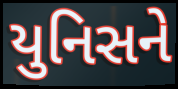
યુનિસને